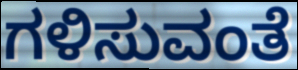
ಗಳಿಸುವಂತೆ